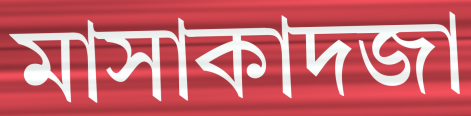
মাসাকাদজা